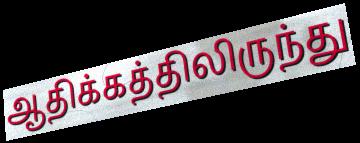
ஆதிக்கத்திலிருந்து